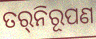
ତର୍‌ନିରୂପଣ